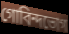
গোবিন্দভোগ